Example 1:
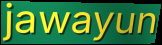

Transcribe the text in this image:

jawayun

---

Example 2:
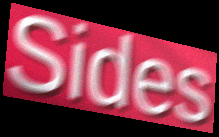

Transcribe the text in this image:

Sides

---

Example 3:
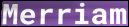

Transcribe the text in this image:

Merriam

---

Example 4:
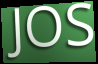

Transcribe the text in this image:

JOS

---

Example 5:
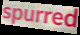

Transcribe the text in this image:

spurred